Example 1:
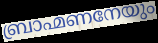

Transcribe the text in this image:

ബ്രാഹ്മണനേയും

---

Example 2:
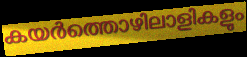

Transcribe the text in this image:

കയർത്തൊഴിലാളികളും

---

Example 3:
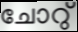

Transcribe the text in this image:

ചോറു്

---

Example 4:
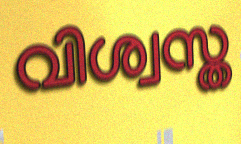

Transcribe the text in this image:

വിശ്വസ്ത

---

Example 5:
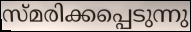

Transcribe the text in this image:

സ്മരിക്കപ്പെടുന്നു